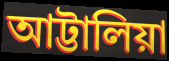
আট্টালিয়া